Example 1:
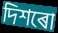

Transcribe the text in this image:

দিশৰো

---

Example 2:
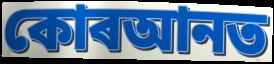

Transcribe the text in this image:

কোৰআনত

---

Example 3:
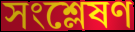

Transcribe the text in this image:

সংশ্লেষণ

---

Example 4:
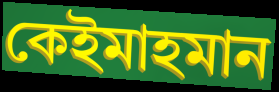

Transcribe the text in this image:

কেইমাহমান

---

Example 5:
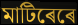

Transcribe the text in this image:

মাটিৰেৰে